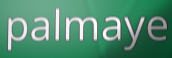
palmaye